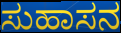
ಸುಹಾಸನ